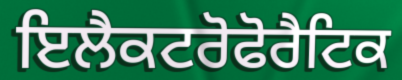
ਇਲੈਕਟਰੋਫੋਰੈਟਿਕ